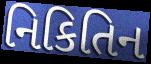
નિકિતિન